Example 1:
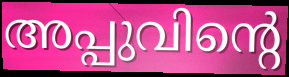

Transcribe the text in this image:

അപ്പുവിന്റെ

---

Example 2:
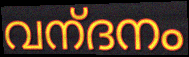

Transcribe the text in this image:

വന്‌ദനം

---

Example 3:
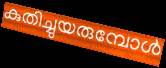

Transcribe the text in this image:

കുതിച്ചുയരുമ്പോൾ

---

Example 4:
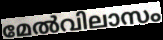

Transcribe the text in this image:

മേൽവിലാസം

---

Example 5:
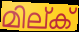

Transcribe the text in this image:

മില്ക്